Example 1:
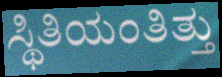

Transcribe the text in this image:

ಸ್ಥಿತಿಯಂತಿತ್ತು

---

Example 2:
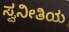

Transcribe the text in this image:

ಸ್ವನೀತಿಯ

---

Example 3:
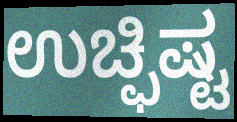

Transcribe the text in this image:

ಉಚ್ಫಿಷ್ಟ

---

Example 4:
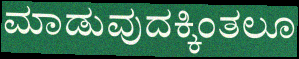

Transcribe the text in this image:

ಮಾಡುವುದಕ್ಕಿಂತಲೂ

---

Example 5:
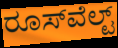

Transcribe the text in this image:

ರೂಸ್‍ವೆಲ್ಟ್